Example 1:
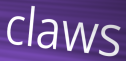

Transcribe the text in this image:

claws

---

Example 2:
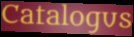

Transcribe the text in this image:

Catalogus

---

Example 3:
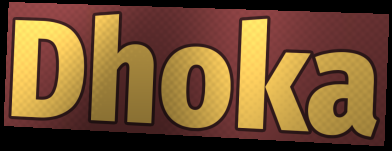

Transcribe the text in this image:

Dhoka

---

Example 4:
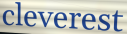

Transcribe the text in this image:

cleverest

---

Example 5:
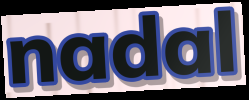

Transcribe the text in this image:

nadal